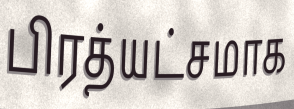
பிரத்யட்சமாக